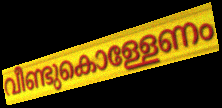
വീണ്ടുകൊള്ളേണം